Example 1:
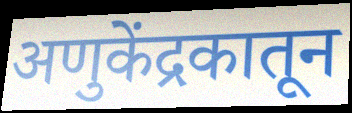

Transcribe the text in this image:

अणुकेंद्रकातून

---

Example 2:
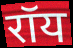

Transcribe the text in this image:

रॉय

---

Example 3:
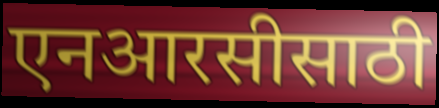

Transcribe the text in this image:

एनआरसीसाठी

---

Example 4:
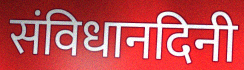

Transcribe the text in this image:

संविधानदिनी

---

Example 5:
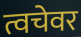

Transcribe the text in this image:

त्वचेवर